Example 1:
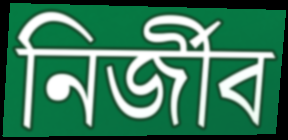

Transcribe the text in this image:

নির্জীব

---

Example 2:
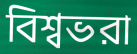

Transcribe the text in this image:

বিশ্বভরা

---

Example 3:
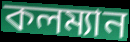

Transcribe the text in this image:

কলম্যান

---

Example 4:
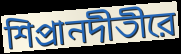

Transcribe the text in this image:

শিপ্রানদীতীরে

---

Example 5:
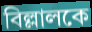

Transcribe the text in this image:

বিল্লালকে